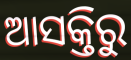
ଆସକ୍ତିରୁ